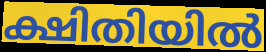
ക്ഷിതിയിൽ